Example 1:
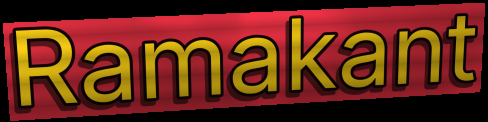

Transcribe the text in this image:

Ramakant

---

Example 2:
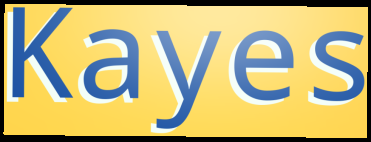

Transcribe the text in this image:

Kayes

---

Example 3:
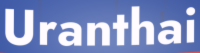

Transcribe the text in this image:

Uranthai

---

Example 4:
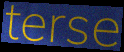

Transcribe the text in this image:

terse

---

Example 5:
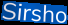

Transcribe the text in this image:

Sirsho